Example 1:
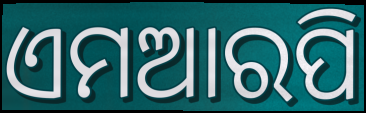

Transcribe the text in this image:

ଏମଆରପି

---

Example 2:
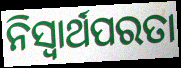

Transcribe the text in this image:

ନିସ୍ଵାର୍ଥପରତା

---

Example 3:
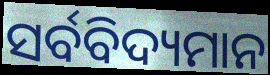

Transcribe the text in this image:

ସର୍ବବିଦ୍ୟମାନ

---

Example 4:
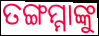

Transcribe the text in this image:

ତଙ୍ଗମ୍ମାଙ୍କୁ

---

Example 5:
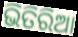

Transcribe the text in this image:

ଭିତିରିଆ